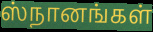
ஸ்நானங்கள்